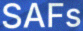
SAFs